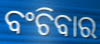
ବଂଚିବାର